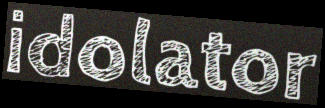
idolator